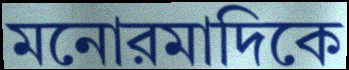
মনোরমাদিকে